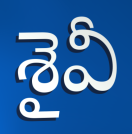
శైవీ